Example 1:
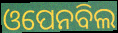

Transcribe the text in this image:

ଓପେନବିଲ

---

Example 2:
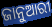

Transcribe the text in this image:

ଜାନୁଆରୀ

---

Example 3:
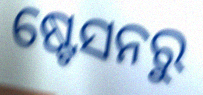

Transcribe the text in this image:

ଷ୍ଟେସନରୁ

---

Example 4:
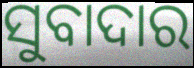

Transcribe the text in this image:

ସୁବାଦାର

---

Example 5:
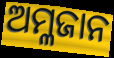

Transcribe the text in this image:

ଅମ୍ଳଜାନ